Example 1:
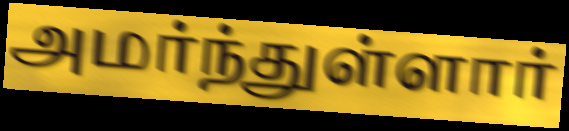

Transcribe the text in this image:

அமர்ந்துள்ளார்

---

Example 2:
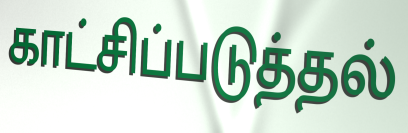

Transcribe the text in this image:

காட்சிப்படுத்தல்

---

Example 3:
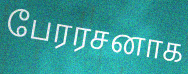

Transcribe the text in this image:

பேரரசனாக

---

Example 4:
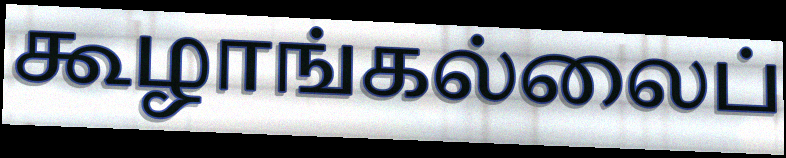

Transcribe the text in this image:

கூழாங்கல்லைப்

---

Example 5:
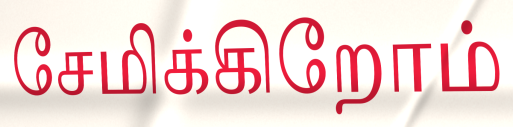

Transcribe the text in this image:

சேமிக்கிறோம்